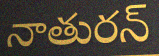
నాతురన్